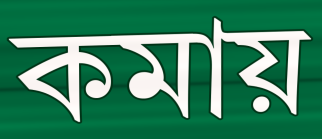
কমায়